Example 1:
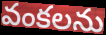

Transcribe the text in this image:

వంకలను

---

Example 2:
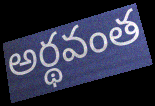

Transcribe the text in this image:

అర్థవంత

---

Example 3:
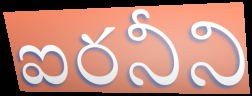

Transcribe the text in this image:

ఐరనీని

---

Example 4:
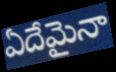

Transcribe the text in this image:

ఏదేమైనా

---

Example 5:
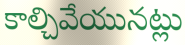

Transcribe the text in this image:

కాల్చివేయునట్లు